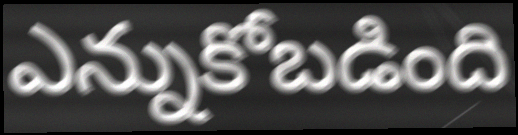
ఎన్నుకోబడింది